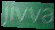
jivva